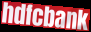
hdfcbank